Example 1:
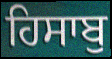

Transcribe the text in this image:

ਹਿਸਾਬੁ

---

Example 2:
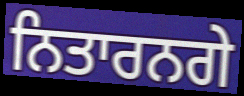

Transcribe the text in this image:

ਨਿਤਾਰਨਗੇ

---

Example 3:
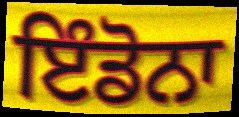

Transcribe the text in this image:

ਇੰਡੋਨਾ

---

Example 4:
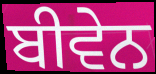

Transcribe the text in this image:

ਬੀਵੇਨ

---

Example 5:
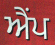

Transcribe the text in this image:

ਐਂਪ